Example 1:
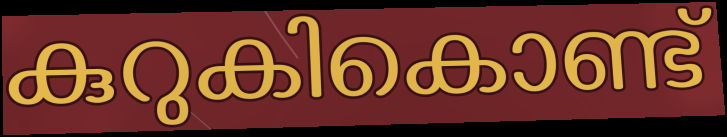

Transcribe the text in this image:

കുറുകികൊണ്ട്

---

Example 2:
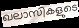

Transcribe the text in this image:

ഖലാസികളുടെ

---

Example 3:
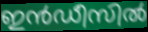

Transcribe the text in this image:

ഇൻഡീസിൽ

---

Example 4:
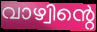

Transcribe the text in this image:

വാഴ്വിന്റെ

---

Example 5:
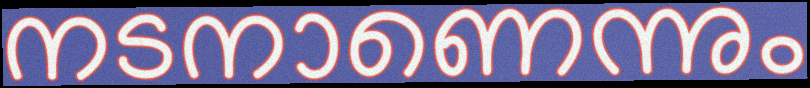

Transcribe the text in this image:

നടനാണെന്നും